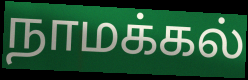
நாமக்கல்